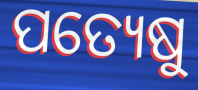
ପତ୍ୟେଷୁ